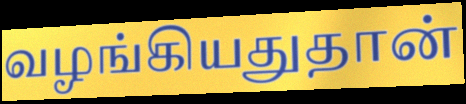
வழங்கியதுதான்